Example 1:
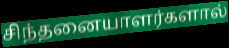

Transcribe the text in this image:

சிந்தனையாளர்களால்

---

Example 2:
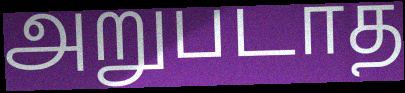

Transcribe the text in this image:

அறுபடாத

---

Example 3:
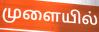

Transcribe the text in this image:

முளையில்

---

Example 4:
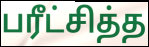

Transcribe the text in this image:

பரீட்சித்த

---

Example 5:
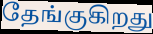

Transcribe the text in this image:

தேங்குகிறது